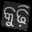
କୁଢ଼ି